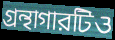
গ্রন্থাগারটিও